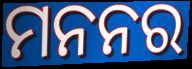
ମନନର